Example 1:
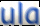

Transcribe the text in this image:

ula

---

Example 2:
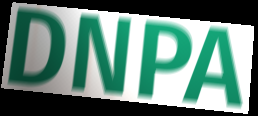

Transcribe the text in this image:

DNPA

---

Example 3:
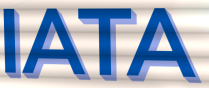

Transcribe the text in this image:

IATA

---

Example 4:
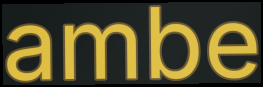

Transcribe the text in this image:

ambe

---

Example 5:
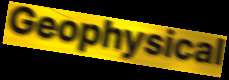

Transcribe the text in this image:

Geophysical